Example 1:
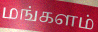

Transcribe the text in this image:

மங்களம்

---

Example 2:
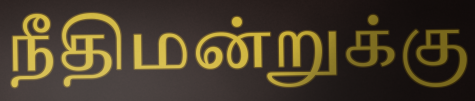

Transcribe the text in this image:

நீதிமன்றுக்கு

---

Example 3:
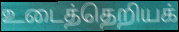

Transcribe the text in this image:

உடைத்தெறியக்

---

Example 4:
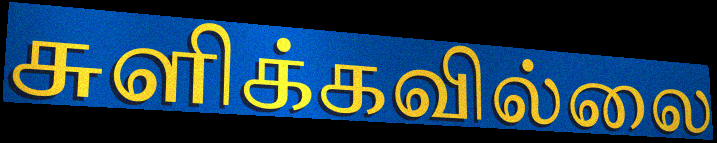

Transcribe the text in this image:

சுளிக்கவில்லை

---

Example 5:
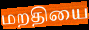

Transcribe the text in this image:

மறதியை